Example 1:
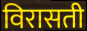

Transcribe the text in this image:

विरासती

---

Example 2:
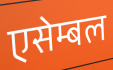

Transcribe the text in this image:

एसेम्बल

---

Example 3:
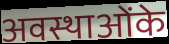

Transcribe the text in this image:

अवस्थाओंके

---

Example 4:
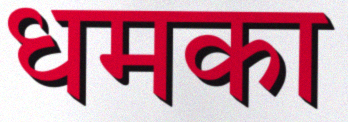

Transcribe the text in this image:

धमका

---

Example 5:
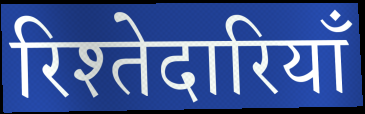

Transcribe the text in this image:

रिश्तेदारियाँ